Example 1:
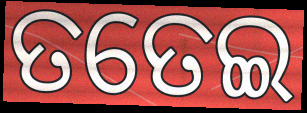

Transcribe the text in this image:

ତତେଇ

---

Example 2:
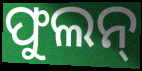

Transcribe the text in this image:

ଫୁଲନ୍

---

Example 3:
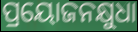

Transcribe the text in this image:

ପ୍ରୟୋଜନକ୍ଷୁଧା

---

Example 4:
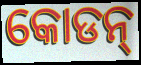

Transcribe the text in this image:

କୋଡନ୍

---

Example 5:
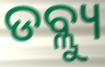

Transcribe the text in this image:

ଡବ୍ଲ୍ୟୁ